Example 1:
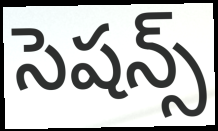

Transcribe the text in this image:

సెషన్స్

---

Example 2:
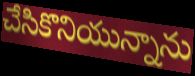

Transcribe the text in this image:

చేసికొనియున్నాను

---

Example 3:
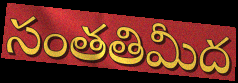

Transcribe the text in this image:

సంతతిమీద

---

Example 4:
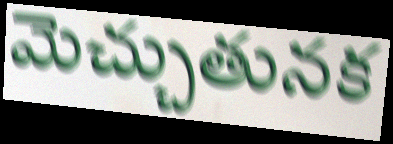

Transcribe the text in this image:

మెచ్చుతునక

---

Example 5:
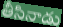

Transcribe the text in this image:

తీసినాడు